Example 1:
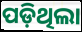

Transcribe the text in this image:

ପଡ଼ିଥିଲା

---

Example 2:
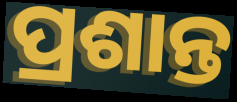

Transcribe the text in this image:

ପ୍ରଶାନ୍ତ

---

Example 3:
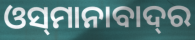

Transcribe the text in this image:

ଓସ୍‌ମାନାବାଦ୍‌ର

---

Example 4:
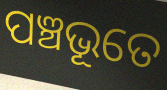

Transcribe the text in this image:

ପଞ୍ଚଭୂତେ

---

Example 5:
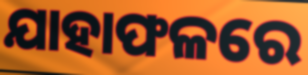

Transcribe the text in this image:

ଯାହାଫଳରେ